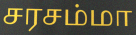
சரசம்மா